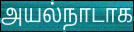
அயல்நாடாக